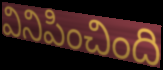
వినిపించింది